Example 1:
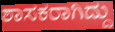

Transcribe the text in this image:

ಶಾಸಕರಾಗಿದ್ದು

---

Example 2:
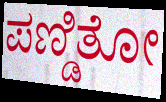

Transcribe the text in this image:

ಪಣ್ಡಿತೋ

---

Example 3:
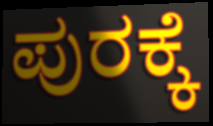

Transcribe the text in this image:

ಪುರಕ್ಕೆ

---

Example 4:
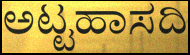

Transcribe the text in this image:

ಅಟ್ಟಹಾಸದಿ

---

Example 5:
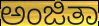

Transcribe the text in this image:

ಅಂಜಿತಾ